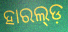
ହାରଲ୍ଡ଼